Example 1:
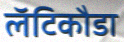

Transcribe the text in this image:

लॅटिकौडा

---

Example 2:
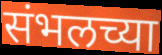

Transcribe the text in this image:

संभलच्या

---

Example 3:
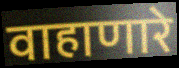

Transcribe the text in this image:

वाहाणारे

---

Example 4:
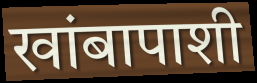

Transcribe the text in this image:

खांबापाशी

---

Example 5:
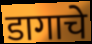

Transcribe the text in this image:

डागाचे